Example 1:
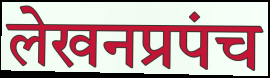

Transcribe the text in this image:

लेखनप्रपंच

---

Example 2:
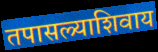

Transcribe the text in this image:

तपासल्याशिवाय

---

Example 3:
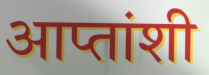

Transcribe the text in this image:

आप्तांशी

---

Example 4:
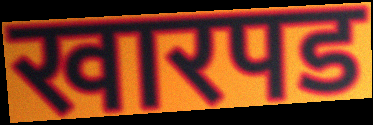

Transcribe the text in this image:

खारपड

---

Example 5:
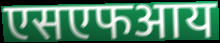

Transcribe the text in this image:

एसएफआय